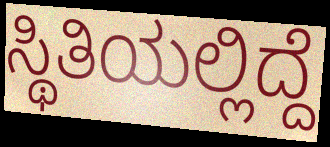
ಸ್ಥಿತಿಯಲ್ಲಿದ್ದೆ